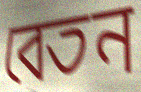
বেতন